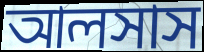
আলসাস